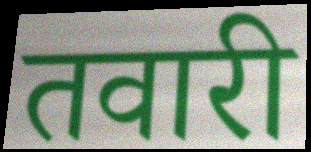
तवारी